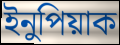
ইনুপিয়াক